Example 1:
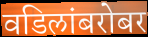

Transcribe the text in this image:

वडिलांबरोबर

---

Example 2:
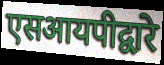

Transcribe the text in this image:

एसआयपीद्वारे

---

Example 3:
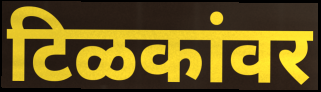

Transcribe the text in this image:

टिळकांवर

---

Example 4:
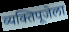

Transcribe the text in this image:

व्यक्तिपूजेला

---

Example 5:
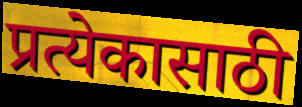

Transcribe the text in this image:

प्रत्येकासाठी